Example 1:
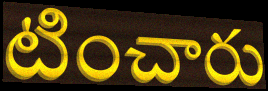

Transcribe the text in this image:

టించారు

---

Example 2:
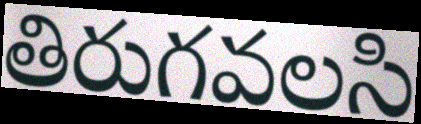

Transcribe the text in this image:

తిరుగవలసి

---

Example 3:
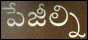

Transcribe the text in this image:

పేజీల్ని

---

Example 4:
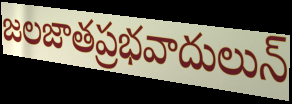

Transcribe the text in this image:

జలజాతప్రభవాదులున్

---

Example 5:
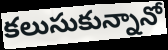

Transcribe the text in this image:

కలుసుకున్నానో